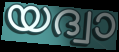
യദ്വാ